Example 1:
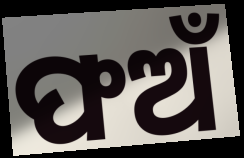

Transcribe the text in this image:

ଫଅଁ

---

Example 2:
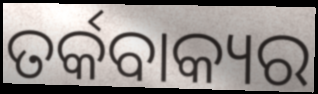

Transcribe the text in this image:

ତର୍କବାକ୍ୟର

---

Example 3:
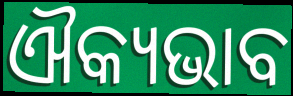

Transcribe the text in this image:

ଐକ୍ୟଭାବ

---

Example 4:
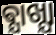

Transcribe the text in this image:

ଵ୍ଯାଖ୍ଯା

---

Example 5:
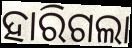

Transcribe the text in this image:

ହାରିଗଲା